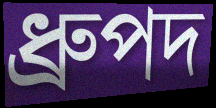
ধ্রুপদ